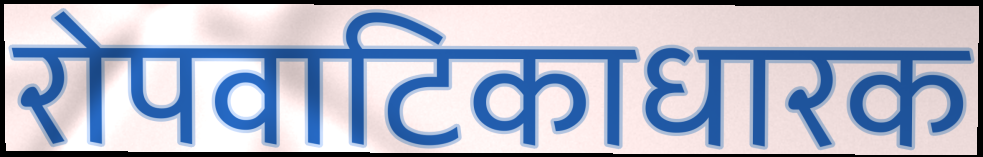
रोपवाटिकाधारक